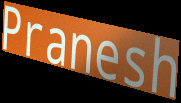
Pranesh